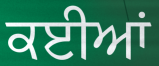
ਕਈਆਂ